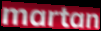
martan